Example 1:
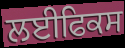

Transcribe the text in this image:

ਲਈਫਿਕਸ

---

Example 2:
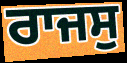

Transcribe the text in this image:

ਰਾਜਸੁ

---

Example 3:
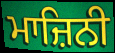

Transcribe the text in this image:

ਮਾਜ਼ਿਨੀ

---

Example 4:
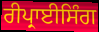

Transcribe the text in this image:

ਰੀਪ੍ਰਾਈਸਿੰਗ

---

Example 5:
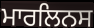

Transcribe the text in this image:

ਮਾਰਲਿਨਸ